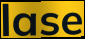
lase